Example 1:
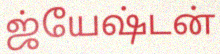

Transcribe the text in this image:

ஜ்யேஷ்டன்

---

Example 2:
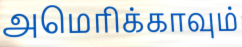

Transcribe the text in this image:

அமெரிக்காவும்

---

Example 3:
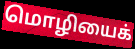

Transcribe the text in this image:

மொழியைக்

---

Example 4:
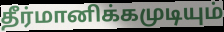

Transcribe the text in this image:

தீர்மானிக்கமுடியும்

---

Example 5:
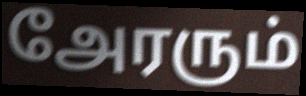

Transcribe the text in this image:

அேரரும்